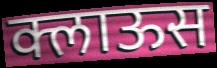
क्लाऊस